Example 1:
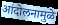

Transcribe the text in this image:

आंदोलनामुळे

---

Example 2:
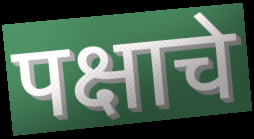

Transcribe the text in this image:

पक्षाचे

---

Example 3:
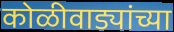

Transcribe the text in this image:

कोळीवाड्यांच्या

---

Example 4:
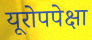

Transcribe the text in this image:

यूरोपपेक्षा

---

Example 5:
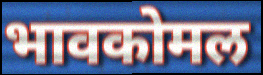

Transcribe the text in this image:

भावकोमल